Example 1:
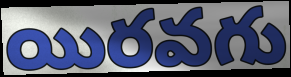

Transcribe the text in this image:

యిరవగు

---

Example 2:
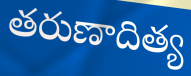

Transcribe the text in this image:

తరుణాదిత్య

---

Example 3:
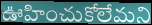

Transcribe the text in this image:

ఊహించుకోలేమని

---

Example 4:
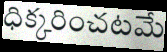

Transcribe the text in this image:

ధిక్కరించటమే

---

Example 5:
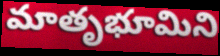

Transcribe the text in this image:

మాతృభూమిని